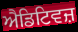
ਐਡਿਟਿਵਜ਼